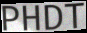
PHDT